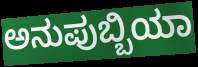
ಅನುಪುಬ್ಬಿಯಾ